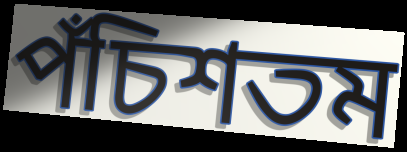
পঁচিশতম